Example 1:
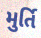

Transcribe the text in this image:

મુર્તિ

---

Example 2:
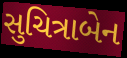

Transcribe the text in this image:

સુચિત્રાબેન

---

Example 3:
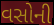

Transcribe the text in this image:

વસોની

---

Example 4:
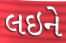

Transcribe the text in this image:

લઇને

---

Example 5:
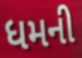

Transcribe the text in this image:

ધમની